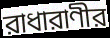
রাধারাণীর